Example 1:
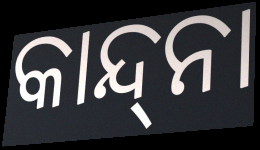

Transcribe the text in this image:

କାନ୍ଦ୍‌ନା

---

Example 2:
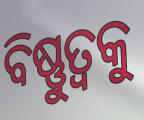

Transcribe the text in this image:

ବିଷ୍ଣୁତ୍ୱକୁ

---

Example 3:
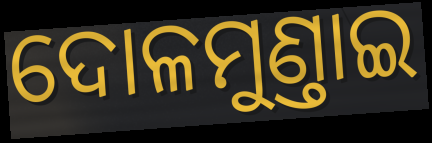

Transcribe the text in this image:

ଦୋଳମୁଣ୍ତାଇ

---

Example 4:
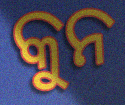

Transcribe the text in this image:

କୁନ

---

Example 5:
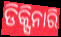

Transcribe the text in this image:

ଡିକ୍ସିନାରି